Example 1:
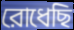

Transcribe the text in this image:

রোধেছি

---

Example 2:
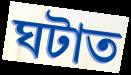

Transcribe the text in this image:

ঘটাত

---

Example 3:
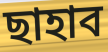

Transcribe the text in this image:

ছাহাব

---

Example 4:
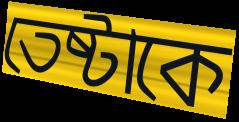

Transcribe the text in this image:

তেষ্টাকে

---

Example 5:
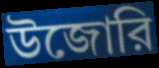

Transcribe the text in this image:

উজোরি